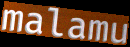
malamu